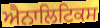
ਐਨਾਲਿਟਿਕਸ